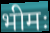
भीमः